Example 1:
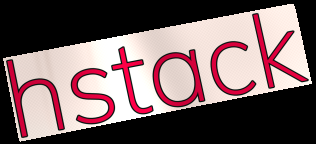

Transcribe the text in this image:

hstack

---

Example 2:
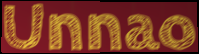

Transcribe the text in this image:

Unnao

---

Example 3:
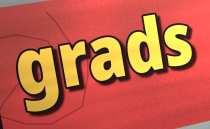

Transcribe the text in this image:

grads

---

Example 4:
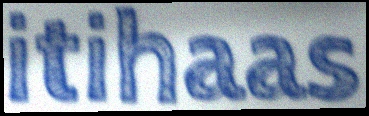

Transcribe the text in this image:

itihaas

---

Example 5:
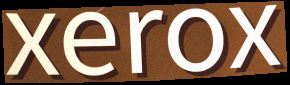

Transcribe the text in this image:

xerox